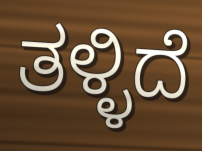
ತಳ್ಳಿದೆ